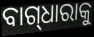
ବାଗ୍‌ଧାରାକୁ